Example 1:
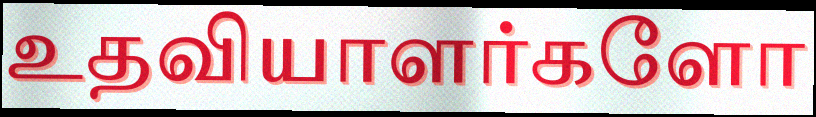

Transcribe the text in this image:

உதவியாளர்களோ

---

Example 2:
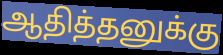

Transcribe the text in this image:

ஆதித்தனுக்கு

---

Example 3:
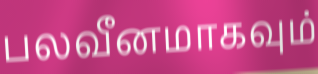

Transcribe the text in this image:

பலவீனமாகவும்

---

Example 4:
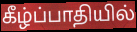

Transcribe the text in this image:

கீழ்ப்பாதியில்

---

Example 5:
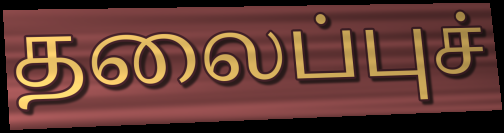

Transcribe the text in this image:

தலைப்புச்